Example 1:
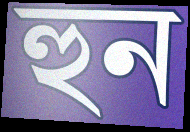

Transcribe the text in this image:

হুন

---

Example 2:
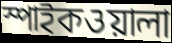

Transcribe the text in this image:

স্পাইকওয়ালা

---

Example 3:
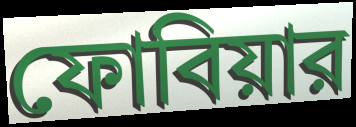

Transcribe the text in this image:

ফোবিয়ার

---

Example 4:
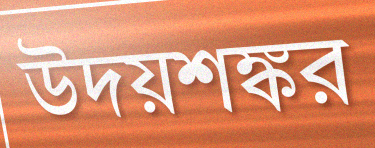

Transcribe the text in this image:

উদয়শঙ্কর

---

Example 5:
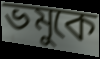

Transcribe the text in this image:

ভমুকে